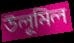
উলূমিল